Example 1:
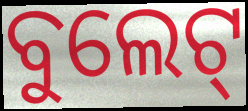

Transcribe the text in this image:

ବୁଲେଟ୍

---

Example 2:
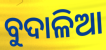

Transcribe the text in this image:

ବୁଦାଳିଆ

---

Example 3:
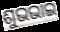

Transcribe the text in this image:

ଶୁଭଭାଇ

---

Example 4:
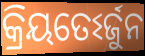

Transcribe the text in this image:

କ୍ରିୟତେଽର୍ଜୁନ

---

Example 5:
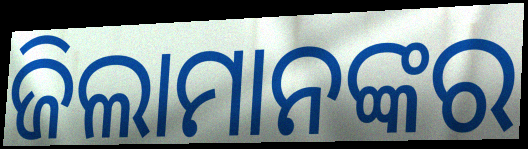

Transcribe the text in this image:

ଜିଲାମାନଙ୍କର